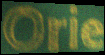
Orie